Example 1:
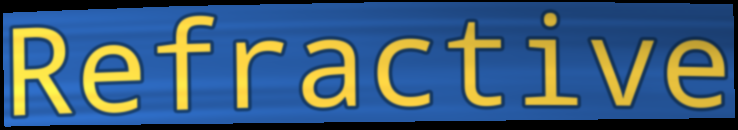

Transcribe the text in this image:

Refractive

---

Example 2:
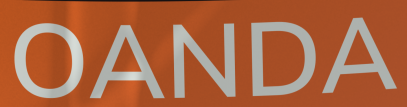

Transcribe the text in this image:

OANDA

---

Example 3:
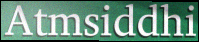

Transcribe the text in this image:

Atmsiddhi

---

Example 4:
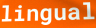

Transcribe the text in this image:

lingual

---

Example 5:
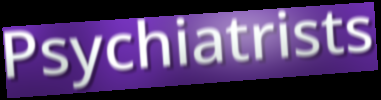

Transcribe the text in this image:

Psychiatrists